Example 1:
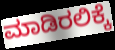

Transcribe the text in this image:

ಮಾಡಿರಲಿಕ್ಕೆ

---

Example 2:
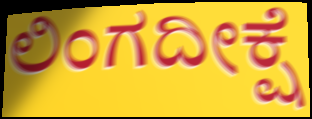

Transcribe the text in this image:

ಲಿಂಗದೀಕ್ಷೆ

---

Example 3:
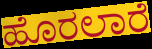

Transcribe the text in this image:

ಹೊರಲಾರೆ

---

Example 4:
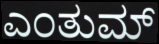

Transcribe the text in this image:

ಎಂತುಮ್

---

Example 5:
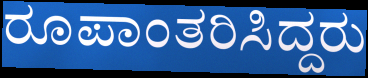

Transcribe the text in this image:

ರೂಪಾಂತರಿಸಿದ್ದರು